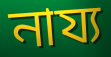
নায্য